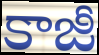
కాజీ